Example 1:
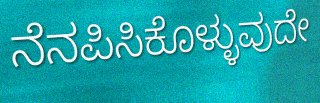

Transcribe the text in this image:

ನೆನಪಿಸಿಕೊಳ್ಳುವುದೇ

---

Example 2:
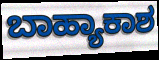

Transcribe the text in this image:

ಬಾಹ್ಯಾಕಾಶ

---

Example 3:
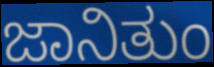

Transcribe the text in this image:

ಜಾನಿತುಂ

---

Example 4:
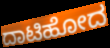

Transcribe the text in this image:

ದಾಟಿಹೋದ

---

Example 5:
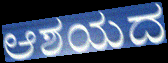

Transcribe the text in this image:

ಆಶಯದ